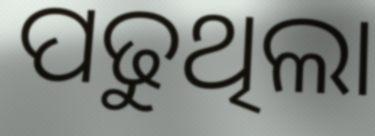
ପଢୁଥିଲା